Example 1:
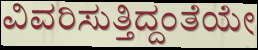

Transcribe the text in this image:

ವಿವರಿಸುತ್ತಿದ್ದಂತೆಯೇ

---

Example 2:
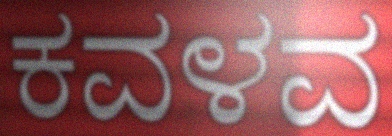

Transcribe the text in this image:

ಕವಳವ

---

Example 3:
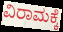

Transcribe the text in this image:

ವಿರಾಮಕ್ಕೆ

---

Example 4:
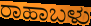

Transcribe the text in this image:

ರಾಹಾಬಳು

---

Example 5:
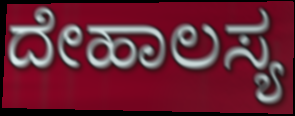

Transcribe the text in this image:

ದೇಹಾಲಸ್ಯ